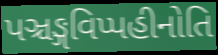
પઞ્ચઙ્ગવિપ્પહીનોતિ